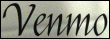
Venmo